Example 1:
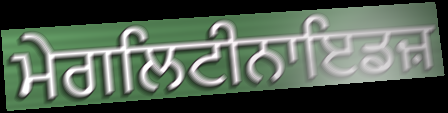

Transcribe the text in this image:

ਮੇਗਲਿਟੀਨਾਇਡਜ਼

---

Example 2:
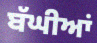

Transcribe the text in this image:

ਬੱਘੀਆਂ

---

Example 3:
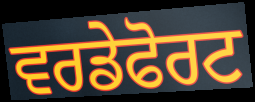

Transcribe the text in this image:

ਵਰਡੇਫੋਰਟ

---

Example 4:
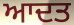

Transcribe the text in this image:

ਆਦਤ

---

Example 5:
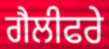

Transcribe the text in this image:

ਗੈਲੀਫਰੇ